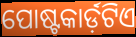
ପୋଷ୍ଟକାର୍ଡ଼ଟିଏ